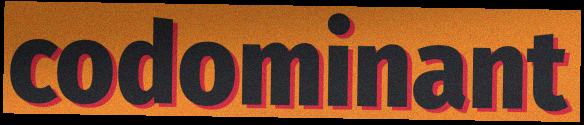
codominant